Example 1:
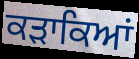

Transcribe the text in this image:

ਕੜਾਕਿਆਂ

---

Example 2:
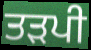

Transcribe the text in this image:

ਤੜਪੀ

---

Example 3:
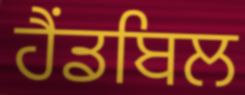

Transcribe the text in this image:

ਹੈਂਡਬਿਲ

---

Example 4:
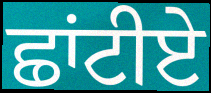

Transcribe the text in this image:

ਛਾਂਟੀਏ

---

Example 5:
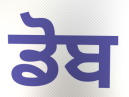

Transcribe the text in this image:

ਡੋਬ